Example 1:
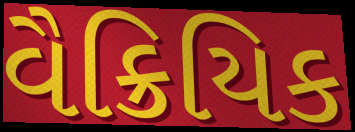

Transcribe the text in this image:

વૈક્રિયિક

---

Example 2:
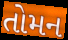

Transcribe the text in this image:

તોમન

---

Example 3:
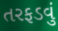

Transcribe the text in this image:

તરફડવું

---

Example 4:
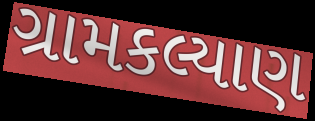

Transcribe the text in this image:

ગ્રામકલ્યાણ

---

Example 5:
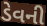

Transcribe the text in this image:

ડેવની